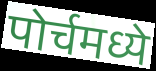
पोर्चमध्ये